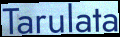
Tarulata